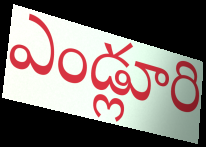
ఎండ్లూరి